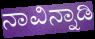
ನಾವಿನ್ನಾಡಿ